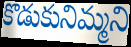
కొడుకునిమ్మని